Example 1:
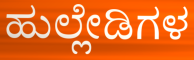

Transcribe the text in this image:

ಹುಲ್ಲೇಡಿಗಳ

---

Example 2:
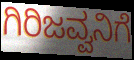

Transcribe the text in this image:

ಗಿರಿಜವ್ವನಿಗೆ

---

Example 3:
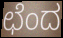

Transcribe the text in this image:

ಛೆಂದ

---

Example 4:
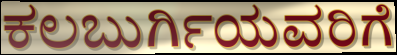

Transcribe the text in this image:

ಕಲಬುರ್ಗಿಯವರಿಗೆ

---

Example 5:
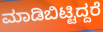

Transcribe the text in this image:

ಮಾಡಿಬಿಟ್ಟಿದ್ದರೆ